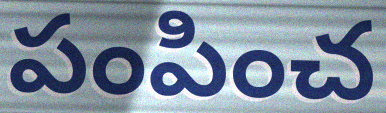
పంపించ